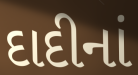
દાદીનાં